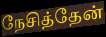
நேசித்தேன்